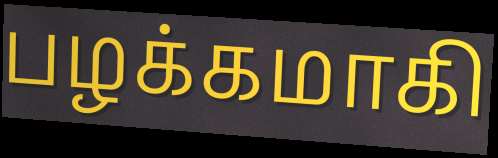
பழக்கமாகி